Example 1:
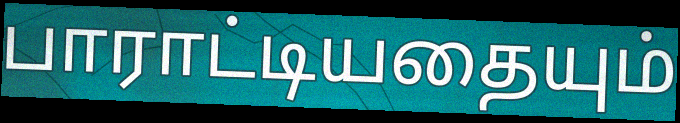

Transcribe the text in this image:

பாராட்டியதையும்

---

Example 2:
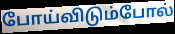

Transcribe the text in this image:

போய்விடும்போல்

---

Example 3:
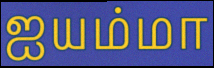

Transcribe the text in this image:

ஐயம்மா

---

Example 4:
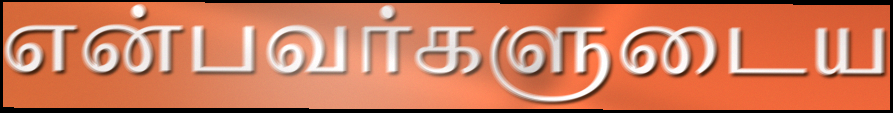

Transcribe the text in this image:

என்பவர்களுடைய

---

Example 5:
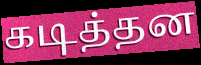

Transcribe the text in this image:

கடித்தன